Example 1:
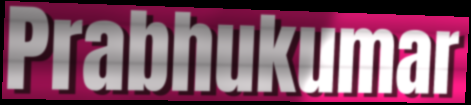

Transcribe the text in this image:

Prabhukumar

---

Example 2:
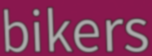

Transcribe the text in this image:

bikers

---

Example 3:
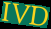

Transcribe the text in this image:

IVD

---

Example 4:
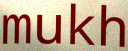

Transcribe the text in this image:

mukh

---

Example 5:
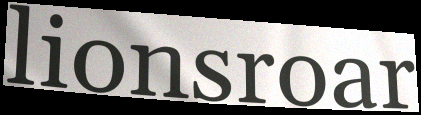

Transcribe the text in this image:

lionsroar